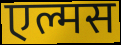
एल्मस